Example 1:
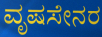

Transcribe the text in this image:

ವೃಷಸೇನರ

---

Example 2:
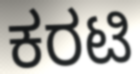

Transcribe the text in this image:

ಕರಟಿ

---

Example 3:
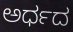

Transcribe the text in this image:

ಅರ್ಧದ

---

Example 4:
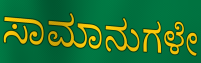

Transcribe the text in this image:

ಸಾಮಾನುಗಳೇ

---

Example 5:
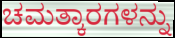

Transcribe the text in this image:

ಚಮತ್ಕಾರಗಳನ್ನು